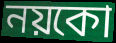
নয়কো